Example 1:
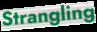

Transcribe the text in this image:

Strangling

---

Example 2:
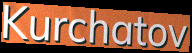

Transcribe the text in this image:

Kurchatov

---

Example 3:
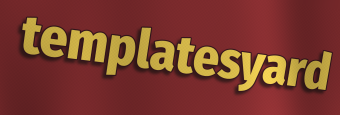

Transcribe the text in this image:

templatesyard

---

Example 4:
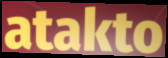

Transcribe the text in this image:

atakto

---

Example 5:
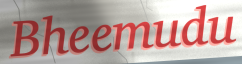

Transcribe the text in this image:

Bheemudu